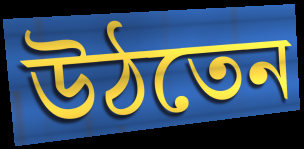
উঠতেন